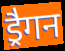
ड्रैगन